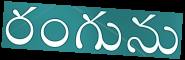
రంగును